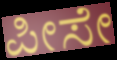
ಪೀಸೇ